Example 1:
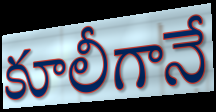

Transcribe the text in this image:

కూలీగానే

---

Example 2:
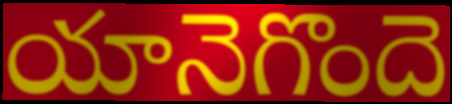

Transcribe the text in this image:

యానెగొందె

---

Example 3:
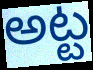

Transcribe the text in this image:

అట్ట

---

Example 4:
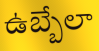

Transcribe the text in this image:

ఉబ్బేలా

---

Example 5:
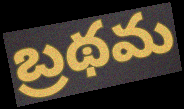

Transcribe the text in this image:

బ్రథమ